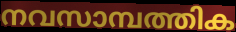
നവസാമ്പത്തിക